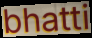
bhatti